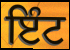
ਇੰਟ